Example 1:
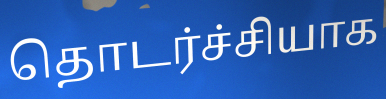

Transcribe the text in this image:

தொடர்ச்சியாக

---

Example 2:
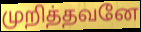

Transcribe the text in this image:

முறித்தவனே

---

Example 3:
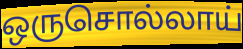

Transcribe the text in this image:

ஒருசொல்லாய்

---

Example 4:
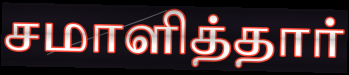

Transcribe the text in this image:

சமாளித்தார்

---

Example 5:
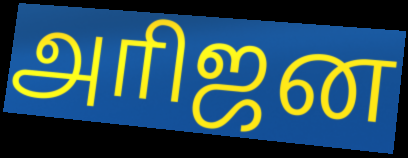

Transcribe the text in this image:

அரிஜன